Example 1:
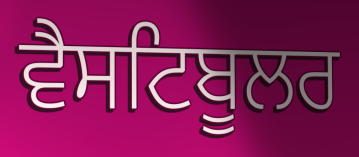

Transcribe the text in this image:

ਵੈਸਟਿਬੂਲਰ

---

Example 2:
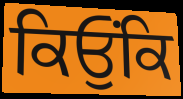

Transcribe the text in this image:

ਕਿਓੁਂਕਿ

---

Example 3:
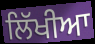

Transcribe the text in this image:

ਲਿੱਖੀਆ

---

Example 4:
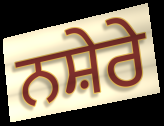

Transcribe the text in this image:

ਨਸ਼ੇਰੇ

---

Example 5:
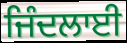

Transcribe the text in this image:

ਜਿੰਦਲਾਈ